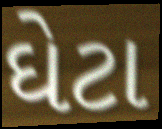
ઘેટા